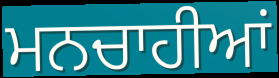
ਮਨਚਾਹੀਆਂ